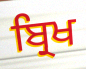
ਬ੍ਰਿਖ